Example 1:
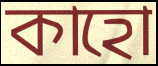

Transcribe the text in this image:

কাহো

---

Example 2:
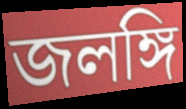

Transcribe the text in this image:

জলঙ্গি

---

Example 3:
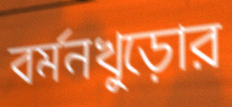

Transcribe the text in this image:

বর্মনখুড়োর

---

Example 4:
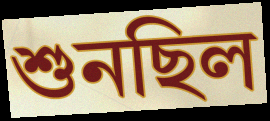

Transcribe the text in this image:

শুনছিল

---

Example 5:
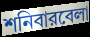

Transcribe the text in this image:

শনিবারবেলা